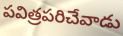
పవిత్రపరిచేవాడు